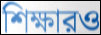
শিক্ষারও